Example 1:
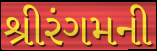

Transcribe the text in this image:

શ્રીરંગમની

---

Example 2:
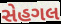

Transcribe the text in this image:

સેહગલ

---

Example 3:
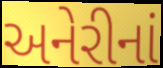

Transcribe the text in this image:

અનેરીનાં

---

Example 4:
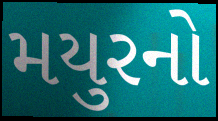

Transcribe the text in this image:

મયુરનો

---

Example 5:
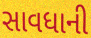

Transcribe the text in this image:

સાવધાની